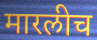
मारलीच